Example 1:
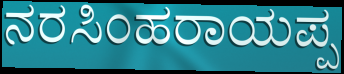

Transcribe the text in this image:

ನರಸಿಂಹರಾಯಪ್ಪ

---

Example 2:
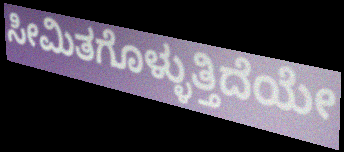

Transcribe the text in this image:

ಸೀಮಿತಗೊಳ್ಳುತ್ತಿದೆಯೇ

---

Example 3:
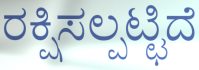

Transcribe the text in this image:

ರಕ್ಷಿಸಲ್ಪಟ್ಟಿದೆ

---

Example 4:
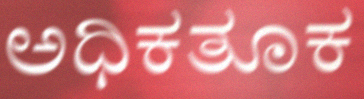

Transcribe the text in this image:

ಅಧಿಕತೂಕ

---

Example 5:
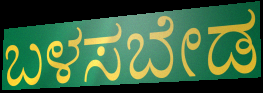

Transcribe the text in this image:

ಬಳಸಬೇಡ